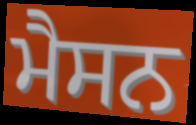
ਮੈਸਨ